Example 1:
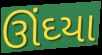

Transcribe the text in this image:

ઊંઘ્યા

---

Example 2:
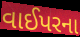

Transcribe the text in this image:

વાઈપરના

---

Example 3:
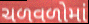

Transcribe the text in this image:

ચળવળોમાં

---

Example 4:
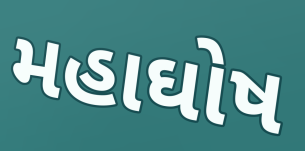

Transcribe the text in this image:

મહાઘોષ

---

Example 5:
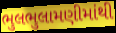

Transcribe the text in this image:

ભુલભુલામણીમાંથી